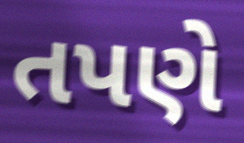
તપણે